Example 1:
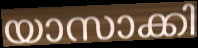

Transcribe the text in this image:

യാസാക്കി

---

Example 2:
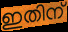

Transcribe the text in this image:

ഇതിന്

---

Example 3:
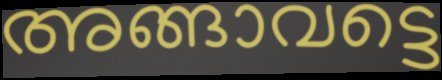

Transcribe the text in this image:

അങ്ങാവട്ടെ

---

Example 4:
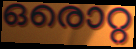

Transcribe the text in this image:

ഒരൊറ്റ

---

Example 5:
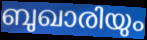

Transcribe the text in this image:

ബുഖാരിയും